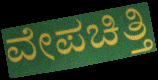
ವೇಪಚಿತ್ತಿ